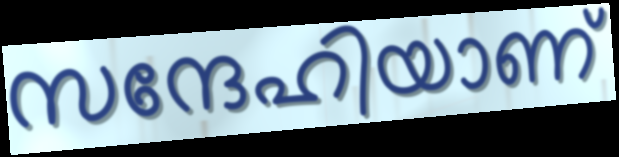
സന്ദേഹിയാണ്